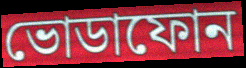
ভোডাফোন